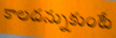
కాలదన్నుకుంటే